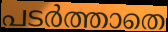
പടർത്താതെ